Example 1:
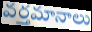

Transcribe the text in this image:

వర్తమానాలు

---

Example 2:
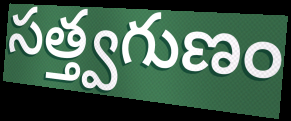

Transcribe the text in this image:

సత్త్వగుణం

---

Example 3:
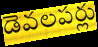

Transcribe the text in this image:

డెవలపర్లు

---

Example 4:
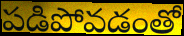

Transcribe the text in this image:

పడిపోవడంతో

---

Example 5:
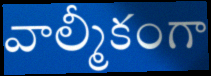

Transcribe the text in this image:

వాల్మీకంగా